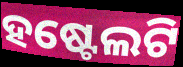
ହଷ୍ଟେଲଟି